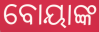
ବୋୟାଙ୍କ